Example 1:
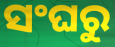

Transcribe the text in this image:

ସଂଘରୁ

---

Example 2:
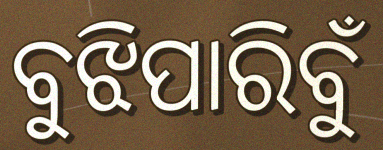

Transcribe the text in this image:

ବୁଝିପାରିବୁଁ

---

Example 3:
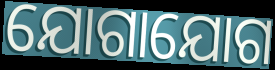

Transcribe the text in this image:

ଯୋଗାଯୋଗ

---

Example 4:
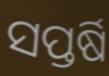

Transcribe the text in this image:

ସପ୍ତର୍ଷି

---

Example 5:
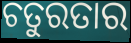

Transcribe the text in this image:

ଚତୁରତାର